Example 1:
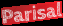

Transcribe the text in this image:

Parisal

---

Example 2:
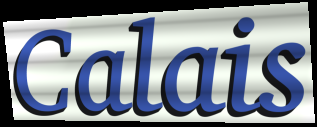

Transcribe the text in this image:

Calais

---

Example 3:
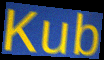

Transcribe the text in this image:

Kub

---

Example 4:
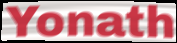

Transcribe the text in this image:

Yonath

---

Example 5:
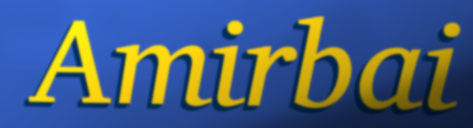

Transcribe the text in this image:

Amirbai